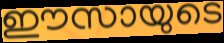
ഈസായുടെ